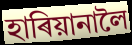
হাৰিয়ানালৈ